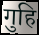
गुहि